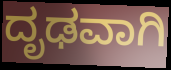
ದೃಢವಾಗಿ